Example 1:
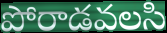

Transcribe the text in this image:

పోరాడవలసి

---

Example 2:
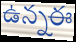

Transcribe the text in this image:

ఉన్నఈ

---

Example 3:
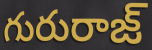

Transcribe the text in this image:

గురురాజ్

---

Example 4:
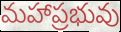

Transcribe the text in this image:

మహాప్రభువు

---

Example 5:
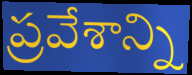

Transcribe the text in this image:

ప్రవేశాన్ని